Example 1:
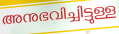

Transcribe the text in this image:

അനുഭവിച്ചിട്ടുള്ള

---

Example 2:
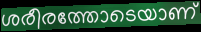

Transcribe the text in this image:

ശരീരത്തോടെയാണ്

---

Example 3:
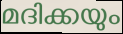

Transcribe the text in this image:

മദിക്കയും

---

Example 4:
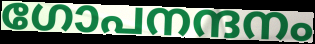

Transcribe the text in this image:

ഗോപനന്ദനം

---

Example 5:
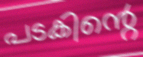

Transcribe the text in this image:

പടകിന്റെ